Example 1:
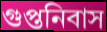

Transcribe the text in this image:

গুপ্তনিবাস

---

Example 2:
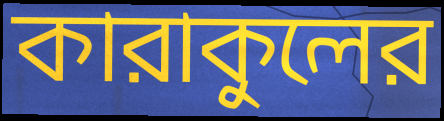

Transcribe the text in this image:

কারাকুলের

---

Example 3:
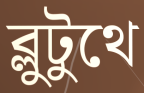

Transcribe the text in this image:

ব্লুটুথে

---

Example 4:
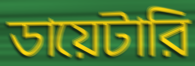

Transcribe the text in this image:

ডায়েটারি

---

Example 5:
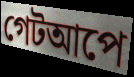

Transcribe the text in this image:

গেটআপে